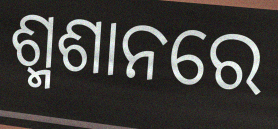
ଶ୍ମଶାନରେ